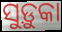
ସୁଡ଼ୁକା